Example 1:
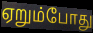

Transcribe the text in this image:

ஏறும்போது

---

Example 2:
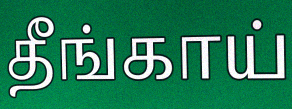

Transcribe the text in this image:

தீங்காய்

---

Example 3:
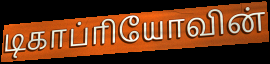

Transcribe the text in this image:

டிகாப்ரியோவின்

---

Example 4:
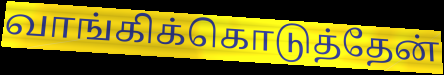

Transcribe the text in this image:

வாங்கிக்கொடுத்தேன்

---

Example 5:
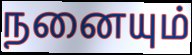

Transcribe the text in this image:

நனையும்